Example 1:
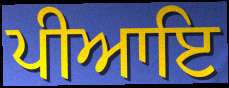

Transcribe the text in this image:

ਪੀਆਇ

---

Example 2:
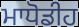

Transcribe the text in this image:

ਮਾਧੋਡੀਹ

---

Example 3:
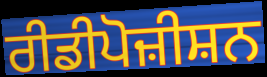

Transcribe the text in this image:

ਰੀਡੀਪੋਜ਼ੀਸ਼ਨ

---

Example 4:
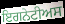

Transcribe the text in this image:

ਇਗਨੇਟੀਅਸ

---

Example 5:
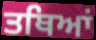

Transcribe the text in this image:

ਤਥਿਆਂ